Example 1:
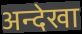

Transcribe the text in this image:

अन्देखा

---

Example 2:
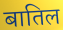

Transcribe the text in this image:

बातिल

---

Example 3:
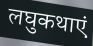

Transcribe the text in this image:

लघुकथाएं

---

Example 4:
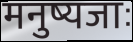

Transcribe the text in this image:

मनुष्यजाः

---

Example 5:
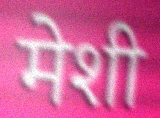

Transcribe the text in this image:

मेशी